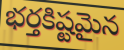
భర్తకిష్టమైన